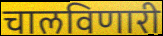
चालविणारी